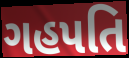
ગહપતિ